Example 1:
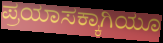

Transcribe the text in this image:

ಪ್ರಯಾಸಕ್ಕಾಗಿಯೂ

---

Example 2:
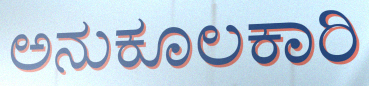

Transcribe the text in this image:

ಅನುಕೂಲಕಾರಿ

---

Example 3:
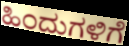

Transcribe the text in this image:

ಹಿಂದುಗಳಿಗೆ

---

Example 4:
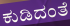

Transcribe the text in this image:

ಕುಡಿದಂತೆ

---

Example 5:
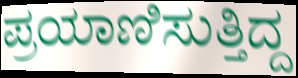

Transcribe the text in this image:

ಪ್ರಯಾಣಿಸುತ್ತಿದ್ದ